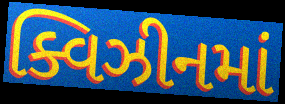
ક્વિઝીનમાં